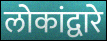
लोकांद्वारे